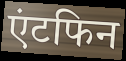
एंटफिन